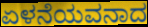
ಏಳನೆಯವನಾದ